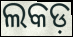
ଲକଡ଼